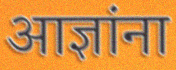
आज्ञांना